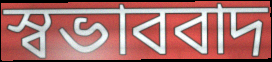
স্বভাববাদ